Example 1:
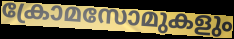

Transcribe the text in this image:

ക്രോമസോമുകളും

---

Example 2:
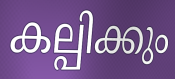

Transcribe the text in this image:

കല്പിക്കും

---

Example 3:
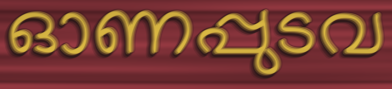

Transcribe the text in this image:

ഓണപ്പുടവ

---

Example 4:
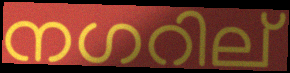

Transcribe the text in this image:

നഗറില്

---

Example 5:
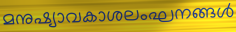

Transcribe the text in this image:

മനുഷ്യാവകാശലംഘനങ്ങൾ